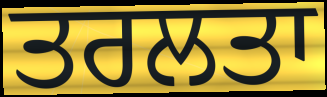
ਤਰਲਤਾ